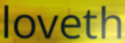
loveth